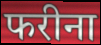
फरीना